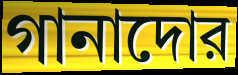
গানাদোর